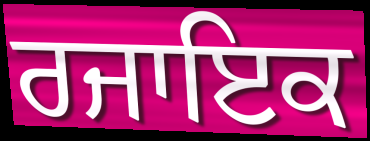
ਰਜਾਇਕ